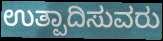
ಉತ್ಪಾದಿಸುವರು